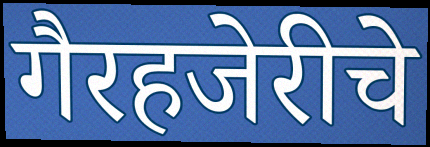
गैरहजेरीचे